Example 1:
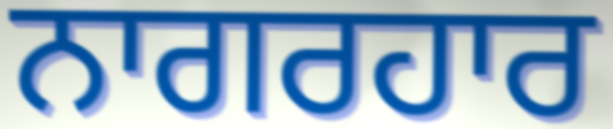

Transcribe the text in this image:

ਨਾਗਰਹਾਰ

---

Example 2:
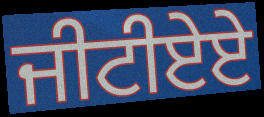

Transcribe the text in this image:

ਜੀਟੀਏਏ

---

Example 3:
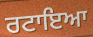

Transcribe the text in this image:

ਰਟਾਇਆ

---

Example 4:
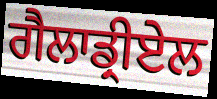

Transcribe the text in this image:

ਗੈਲਾਡ੍ਰੀਏਲ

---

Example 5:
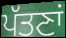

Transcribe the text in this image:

ਪੱਤਣਾਂ